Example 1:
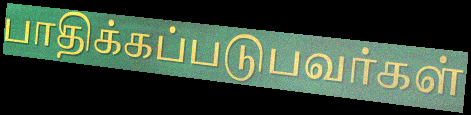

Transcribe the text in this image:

பாதிக்கப்படுபவர்கள்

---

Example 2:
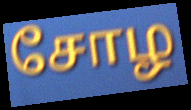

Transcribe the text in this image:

சோழ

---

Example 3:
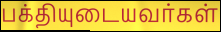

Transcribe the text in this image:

பக்தியுடையவர்கள்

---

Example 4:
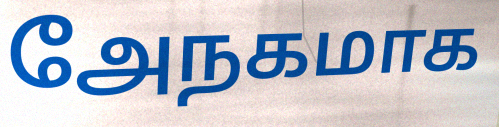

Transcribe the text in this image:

அேநகமாக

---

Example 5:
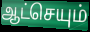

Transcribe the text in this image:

ஆட்செயும்